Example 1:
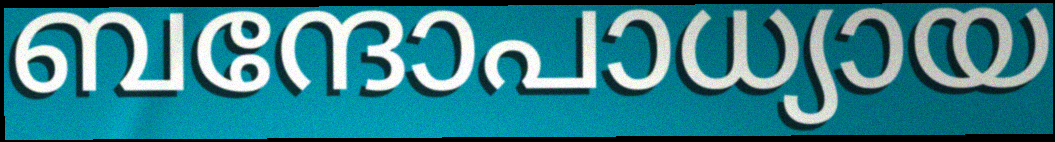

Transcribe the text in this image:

ബന്ദോപാധ്യായ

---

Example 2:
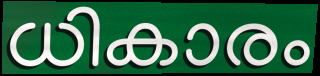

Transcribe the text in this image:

ധികാരം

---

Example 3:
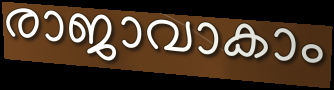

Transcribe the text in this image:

രാജാവാകാം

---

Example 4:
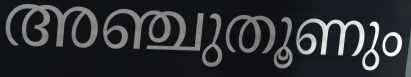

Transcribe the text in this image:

അഞ്ചുതൂണും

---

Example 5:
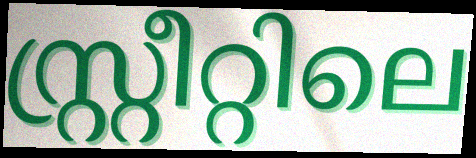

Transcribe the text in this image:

സ്റ്റ്രീറ്റിലെ